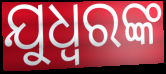
ଯୁଧ୍ୱରଙ୍କ